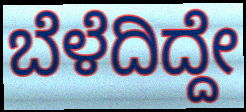
ಬೆಳೆದಿದ್ದೇ